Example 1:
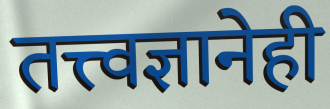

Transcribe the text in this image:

तत्त्वज्ञानेही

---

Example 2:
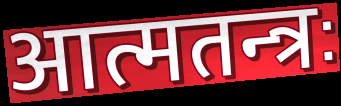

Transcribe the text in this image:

आत्मतन्त्रः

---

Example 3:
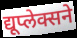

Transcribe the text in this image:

द्यूप्लेक्सने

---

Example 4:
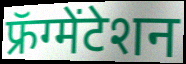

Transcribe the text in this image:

फ्रॅग्मेंटेशन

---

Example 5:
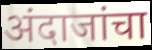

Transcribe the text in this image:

अंदाजांचा